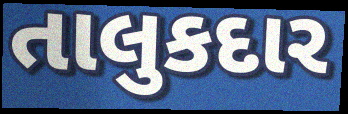
તાલુકદાર